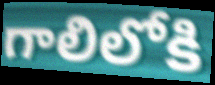
గాలిలోకి